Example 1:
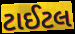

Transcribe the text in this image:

ટાઈટલ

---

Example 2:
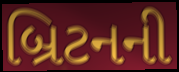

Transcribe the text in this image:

બ્રિટનની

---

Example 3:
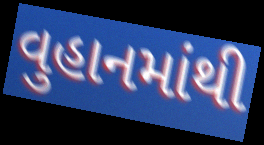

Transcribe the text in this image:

વુહાનમાંથી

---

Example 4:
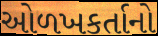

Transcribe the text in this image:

ઓળખકર્તાનો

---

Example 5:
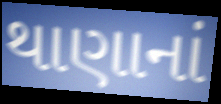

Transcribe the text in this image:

થાણાનાં